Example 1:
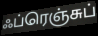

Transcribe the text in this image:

ஃப்ரெஞ்சுப்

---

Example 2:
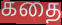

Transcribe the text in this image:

கதை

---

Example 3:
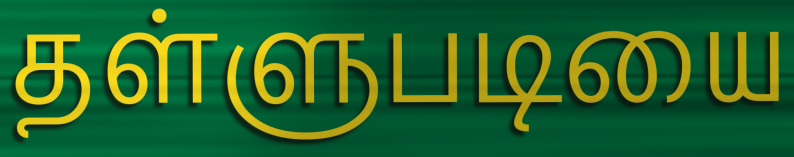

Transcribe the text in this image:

தள்ளுபடியை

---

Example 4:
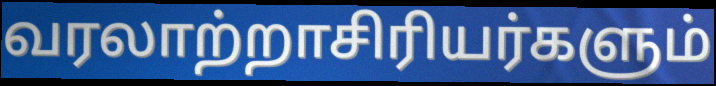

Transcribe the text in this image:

வரலாற்றாசிரியர்களும்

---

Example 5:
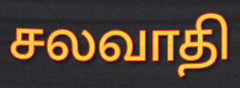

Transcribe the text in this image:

சலவாதி